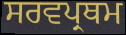
ਸਰਵਪ੍ਰਥਮ